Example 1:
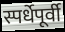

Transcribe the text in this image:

स्पर्धेपूर्वी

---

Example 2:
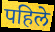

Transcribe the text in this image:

पहिले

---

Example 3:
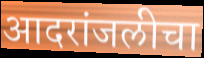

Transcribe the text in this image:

आदरांजलीचा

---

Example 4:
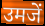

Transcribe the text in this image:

उमजें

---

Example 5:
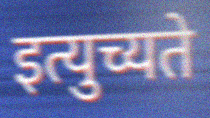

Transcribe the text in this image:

इत्युच्यते